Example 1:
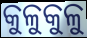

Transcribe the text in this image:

କୁଳୁକୁଳୁ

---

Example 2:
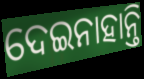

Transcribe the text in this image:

ଦେଇନାହାନ୍ତି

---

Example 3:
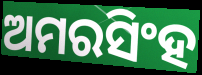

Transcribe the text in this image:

ଅମରସିଂହ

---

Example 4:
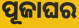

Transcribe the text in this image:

ପୂଜାଘର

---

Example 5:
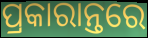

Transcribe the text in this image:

ପ୍ରକାରାନ୍ତରେ